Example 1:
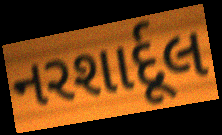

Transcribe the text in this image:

નરશાર્દૂલ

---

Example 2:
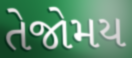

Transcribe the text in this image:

તેજોમય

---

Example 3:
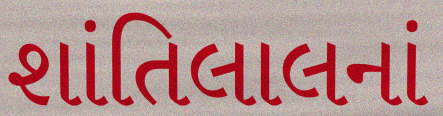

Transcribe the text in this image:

શાંતિલાલનાં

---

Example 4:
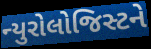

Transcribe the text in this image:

ન્યુરોલોજિસ્ટને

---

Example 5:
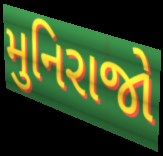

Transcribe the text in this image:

મુનિરાજો